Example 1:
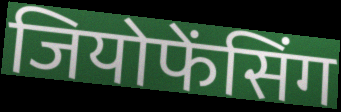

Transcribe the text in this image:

जियोफेंसिंग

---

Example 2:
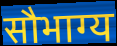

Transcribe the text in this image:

सौभाग्य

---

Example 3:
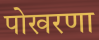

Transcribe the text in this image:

पोखरणा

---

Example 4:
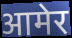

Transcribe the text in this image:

आमेर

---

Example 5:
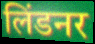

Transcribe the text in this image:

लिंडनर